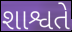
શાશ્વતે